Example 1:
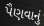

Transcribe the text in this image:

પૈણવાનું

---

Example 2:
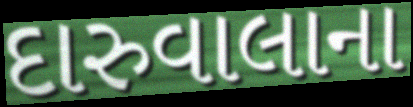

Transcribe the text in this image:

દારુવાલાના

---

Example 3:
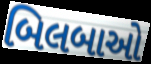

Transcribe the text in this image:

બિલબાઓ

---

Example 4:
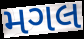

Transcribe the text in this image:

મગલ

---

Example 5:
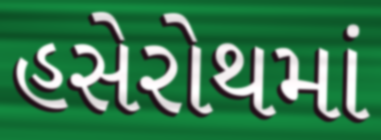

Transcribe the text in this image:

હસેરોથમાં